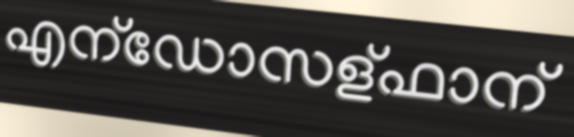
എന്ഡോസള്ഫാന്